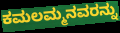
ಕಮಲಮ್ಮನವರನ್ನು